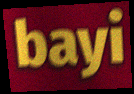
bayi